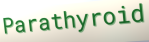
Parathyroid